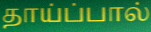
தாய்ப்பால்